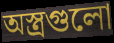
অস্ত্রগুলো